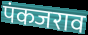
पंकजराव